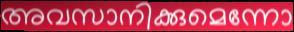
അവസാനിക്കുമെന്നോ